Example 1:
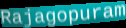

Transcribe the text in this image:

Rajagopuram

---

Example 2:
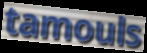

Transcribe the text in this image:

tamouls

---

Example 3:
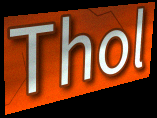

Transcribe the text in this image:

Thol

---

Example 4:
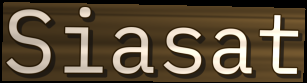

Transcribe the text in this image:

Siasat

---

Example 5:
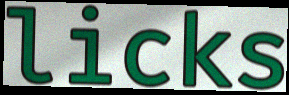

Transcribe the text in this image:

licks